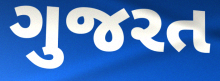
ગુજરત